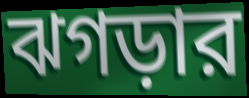
ঝগড়ার